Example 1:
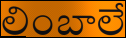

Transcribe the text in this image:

లింబాలే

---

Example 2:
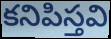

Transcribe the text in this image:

కనిపిస్తవి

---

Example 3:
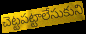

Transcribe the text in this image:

చెట్టపట్టాలేసుకుని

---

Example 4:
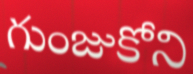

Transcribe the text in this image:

గుంజుకోని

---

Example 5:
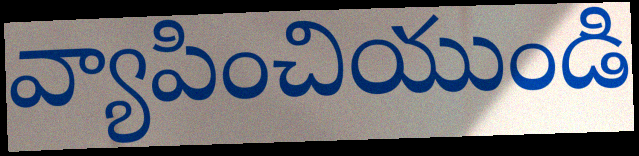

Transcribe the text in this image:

వ్యాపించియుండి